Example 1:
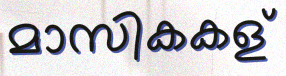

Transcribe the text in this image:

മാസികകള്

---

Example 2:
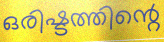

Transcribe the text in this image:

ഒരിഷ്ടത്തിന്റെ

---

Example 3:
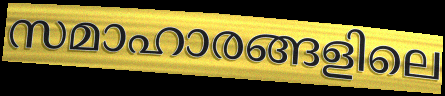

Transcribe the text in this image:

സമാഹാരങ്ങളിലെ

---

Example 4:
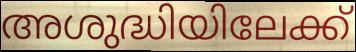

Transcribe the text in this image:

അശുദ്ധിയിലേക്ക്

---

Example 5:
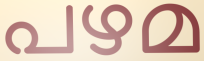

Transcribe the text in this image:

പഴമ